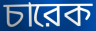
চারেক